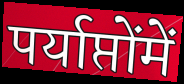
पर्याप्तोंमें